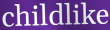
childlike